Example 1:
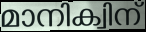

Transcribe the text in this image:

മാനിക്വിന്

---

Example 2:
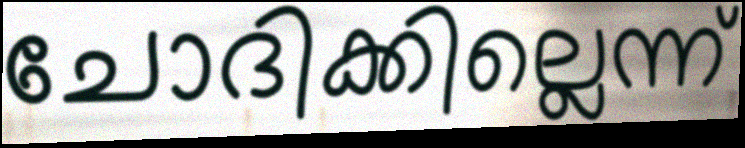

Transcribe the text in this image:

ചോദിക്കില്ലെന്ന്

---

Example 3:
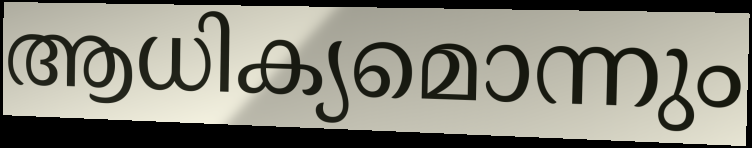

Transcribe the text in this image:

ആധിക്യമൊന്നും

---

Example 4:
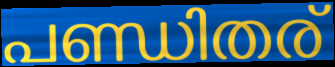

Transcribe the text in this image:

പണ്ഡിതര്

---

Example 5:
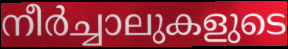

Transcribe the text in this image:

നീർച്ചാലുകളുടെ